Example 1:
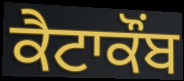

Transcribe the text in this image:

ਕੈਟਾਕੌਂਬ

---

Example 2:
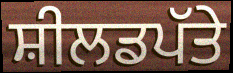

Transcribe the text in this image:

ਸ਼ੀਲਡਪੱਤੇ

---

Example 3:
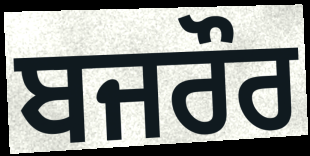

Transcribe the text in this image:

ਬਜਰੌਰ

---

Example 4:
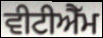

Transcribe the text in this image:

ਵੀਟੀਐੱਮ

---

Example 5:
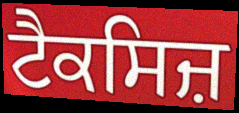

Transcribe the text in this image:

ਟੈਕਸਿਜ਼